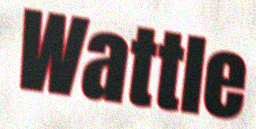
Wattle